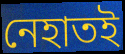
নেহাতই